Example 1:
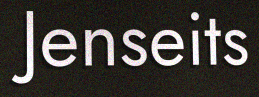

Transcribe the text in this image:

Jenseits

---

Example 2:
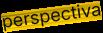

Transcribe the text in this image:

perspectiva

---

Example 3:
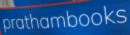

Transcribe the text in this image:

prathambooks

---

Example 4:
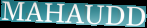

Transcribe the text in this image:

MAHAUDD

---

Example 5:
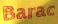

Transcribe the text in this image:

Barac